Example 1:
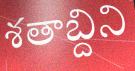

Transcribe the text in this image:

శతాబ్దిని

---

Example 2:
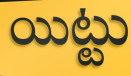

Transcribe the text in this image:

యిట్టు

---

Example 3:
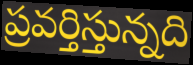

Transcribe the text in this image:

ప్రవర్తిస్తున్నది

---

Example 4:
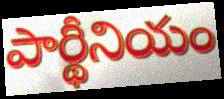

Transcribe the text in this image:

పార్థీనియం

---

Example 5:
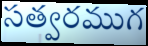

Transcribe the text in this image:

సత్వరముగ